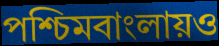
পশ্চিমবাংলায়ও